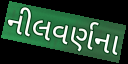
નીલવર્ણના